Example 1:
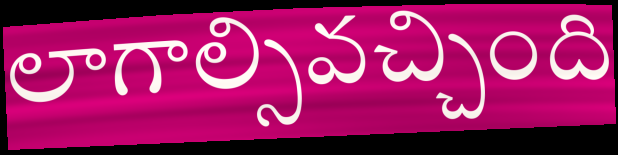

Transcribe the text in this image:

లాగాల్సివచ్చింది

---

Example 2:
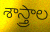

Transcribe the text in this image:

శాస్త్రాల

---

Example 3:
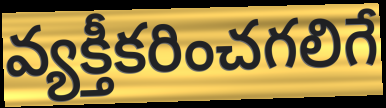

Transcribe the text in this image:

వ్యక్తీకరించగలిగే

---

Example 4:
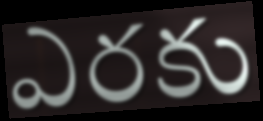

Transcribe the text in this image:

ఎరకు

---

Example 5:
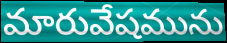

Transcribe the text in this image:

మారువేషమును